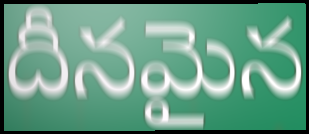
దీనమైన